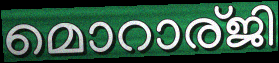
മൊറാര്ജി